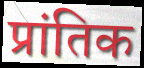
प्रांतिक